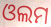
ଓଲମ